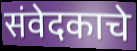
संवेदकाचे